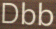
Dbb